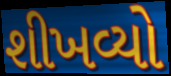
શીખવ્યો